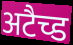
अटैच्ड